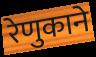
रेणुकाने